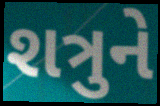
શત્રુને